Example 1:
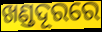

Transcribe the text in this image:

ଖଣ୍ଡଦୂରରେ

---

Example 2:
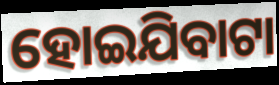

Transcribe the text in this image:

ହୋଇଯିବାଟା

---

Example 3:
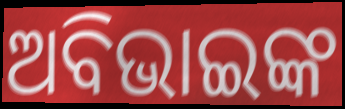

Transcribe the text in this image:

ଅବିଭାଇଙ୍କ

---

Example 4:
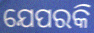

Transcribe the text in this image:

ଯେପରକି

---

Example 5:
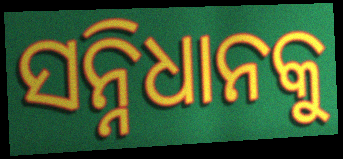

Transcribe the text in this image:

ସନ୍ନିଧାନକୁ